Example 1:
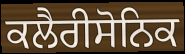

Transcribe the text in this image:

ਕਲੈਰੀਸੋਨਿਕ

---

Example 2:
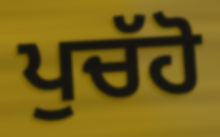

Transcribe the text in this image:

ਪੁਚੱਹੋ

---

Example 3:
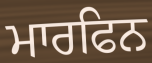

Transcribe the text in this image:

ਮਾਰਫਿਨ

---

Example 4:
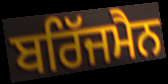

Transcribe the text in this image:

ਬਰਿੱਜਮੈਨ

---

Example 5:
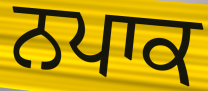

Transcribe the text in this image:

ਨਪਾਕ